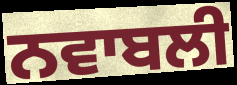
ਨਵਾਬਲੀ